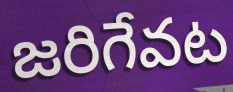
జరిగేవట